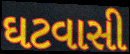
ઘટવાસી